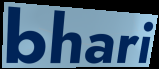
bhari